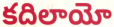
కదిలాయో